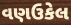
વણઉકેલ